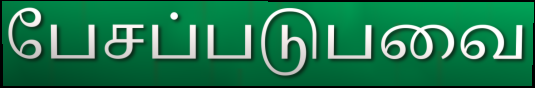
பேசப்படுபவை